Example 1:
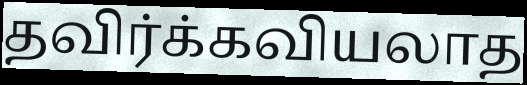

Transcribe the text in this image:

தவிர்க்கவியலாத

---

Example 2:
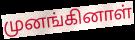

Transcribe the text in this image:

முனங்கினாள்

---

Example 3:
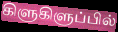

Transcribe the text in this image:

கிளுகிளுப்பில்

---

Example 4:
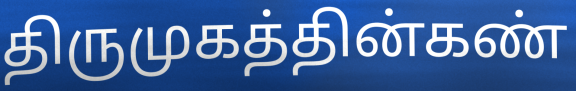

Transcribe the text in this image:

திருமுகத்தின்கண்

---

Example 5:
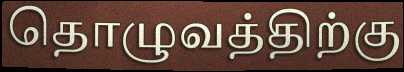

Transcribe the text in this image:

தொழுவத்திற்கு